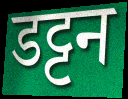
डट्टन